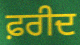
ਫ਼ਰੀਦ